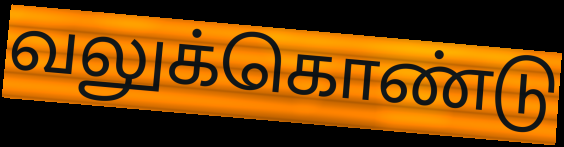
வலுக்கொண்டு